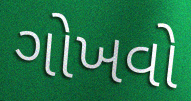
ગોખવો